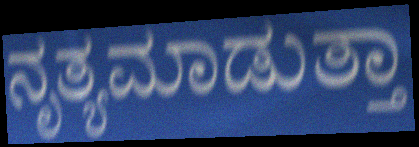
ನೃತ್ಯಮಾಡುತ್ತಾ